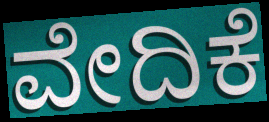
ವೇದಿಕೆ